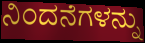
ನಿಂದನೆಗಳನ್ನು